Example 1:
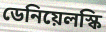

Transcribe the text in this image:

ডেনিয়েলস্কি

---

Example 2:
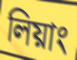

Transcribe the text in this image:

লিয়াং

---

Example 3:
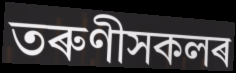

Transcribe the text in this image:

তৰুণীসকলৰ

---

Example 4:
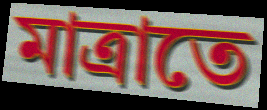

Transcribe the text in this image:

মাত্ৰাতে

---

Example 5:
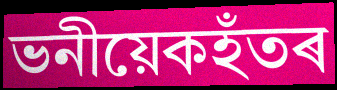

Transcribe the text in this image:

ভনীয়েকহঁতৰ